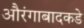
औरंगाबादकडे